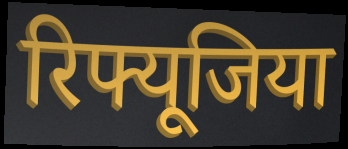
रिफ्यूजिया